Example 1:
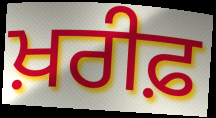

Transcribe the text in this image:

ਖ਼ਰੀਫ਼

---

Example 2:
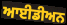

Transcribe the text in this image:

ਆਈਡੀਅਨ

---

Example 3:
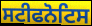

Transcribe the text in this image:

ਸਟੀਫਨੋਟਿਸ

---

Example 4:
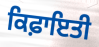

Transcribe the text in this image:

ਕਿਫ਼ਾਇਤੀ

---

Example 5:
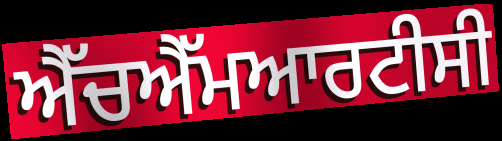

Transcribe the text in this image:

ਐੱਚਐੱਮਆਰਟੀਸੀ